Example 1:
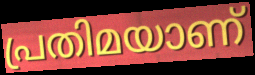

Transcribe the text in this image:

പ്രതിമയാണ്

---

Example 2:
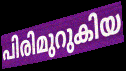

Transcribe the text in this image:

പിരിമുറുകിയ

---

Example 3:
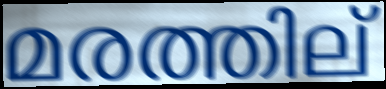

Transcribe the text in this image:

മരത്തില്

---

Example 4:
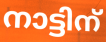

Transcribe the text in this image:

നാട്ടിന്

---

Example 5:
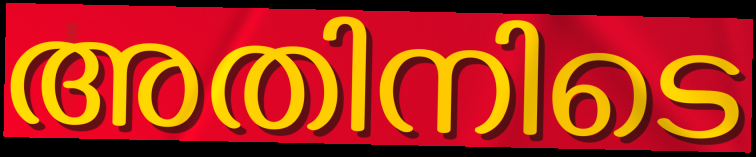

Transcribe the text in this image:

അതിനിടെ